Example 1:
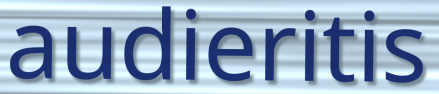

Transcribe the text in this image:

audieritis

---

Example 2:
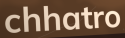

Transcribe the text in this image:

chhatro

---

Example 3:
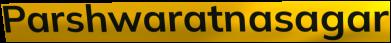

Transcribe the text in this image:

Parshwaratnasagar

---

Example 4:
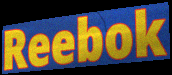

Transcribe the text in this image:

Reebok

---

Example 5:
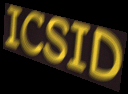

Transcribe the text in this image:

ICSID